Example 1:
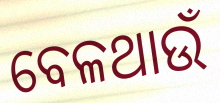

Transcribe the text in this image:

ବେଳଥାଉଁ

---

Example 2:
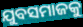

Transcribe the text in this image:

ଯୁବସମାଜକୁ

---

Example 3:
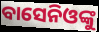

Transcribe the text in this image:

ବାସେନିଓଙ୍କୁ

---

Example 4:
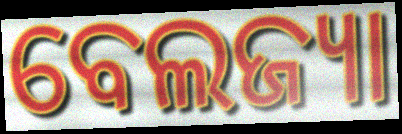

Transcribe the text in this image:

ବେଲଜ୍ୟା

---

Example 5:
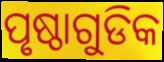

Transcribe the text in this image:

ପୃଷ୍ଠାଗୁଡିକ